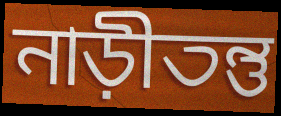
নাড়ীতন্তু